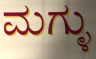
ಮಗ್ಳು